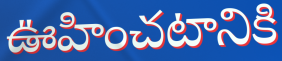
ఊహించటానికి